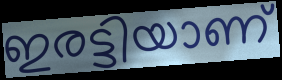
ഇരട്ടിയാണ്